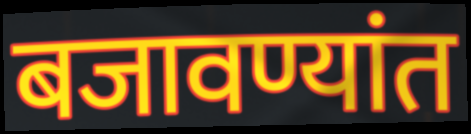
बजावण्यांत